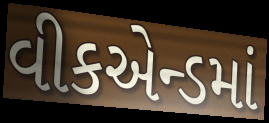
વીકએન્ડમાં